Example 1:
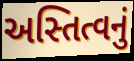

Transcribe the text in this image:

અસ્તિત્વનું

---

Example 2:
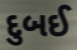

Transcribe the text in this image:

દુબઈ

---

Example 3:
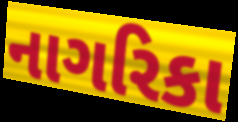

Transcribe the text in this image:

નાગરિકા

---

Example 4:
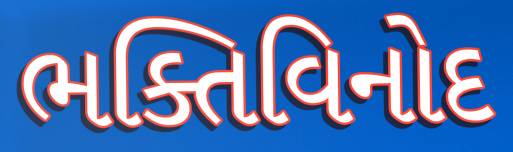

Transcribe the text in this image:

ભક્તિવિનોદ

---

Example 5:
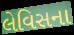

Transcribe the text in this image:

લેવિસના